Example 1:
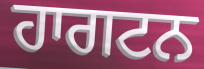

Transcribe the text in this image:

ਹਾਗਟਨ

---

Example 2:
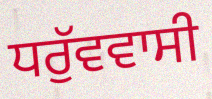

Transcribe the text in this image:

ਧਰੁੱਵਵਾਸੀ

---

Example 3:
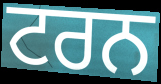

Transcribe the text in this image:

ਟਰਨ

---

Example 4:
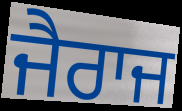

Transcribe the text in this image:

ਜੈਰਾਜ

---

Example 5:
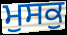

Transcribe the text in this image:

ਮੁਸਕੁ